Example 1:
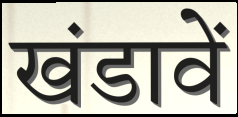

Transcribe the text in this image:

खंडावें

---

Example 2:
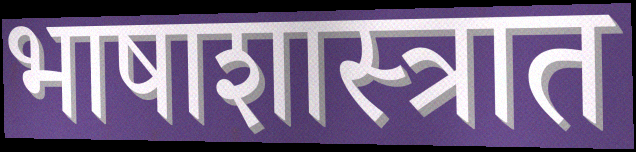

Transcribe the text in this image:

भाषाशास्त्रात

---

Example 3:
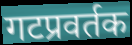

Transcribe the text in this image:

गटप्रवर्तक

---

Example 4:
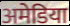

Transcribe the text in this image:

अमेडिया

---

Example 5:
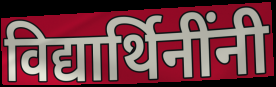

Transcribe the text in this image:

विद्यार्थिनींनी